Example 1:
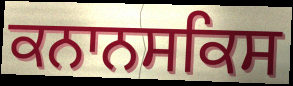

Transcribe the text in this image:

ਕਨਾਨਸਕਿਸ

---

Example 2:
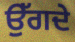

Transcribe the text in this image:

ਉੱਗਦੇ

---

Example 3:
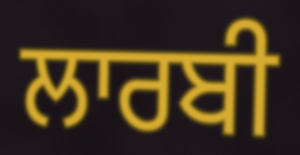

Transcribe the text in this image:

ਲਾਰਬੀ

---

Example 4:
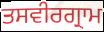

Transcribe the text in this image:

ਤਸਵੀਰਗ੍ਰਾਮ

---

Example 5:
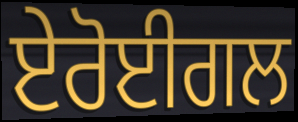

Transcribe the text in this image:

ਏਰੋਈਗਲ